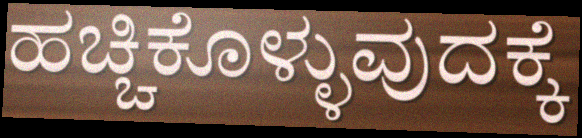
ಹಚ್ಚಿಕೊಳ್ಳುವುದಕ್ಕೆ